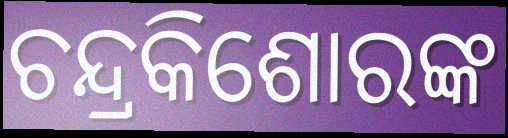
ଚନ୍ଦ୍ରକିଶୋରଙ୍କ